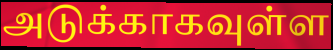
அடுக்காகவுள்ள